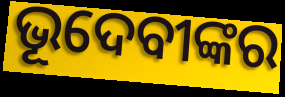
ଭୂଦେବୀଙ୍କର